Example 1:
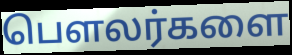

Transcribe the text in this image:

பௌலர்களை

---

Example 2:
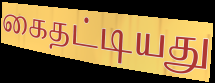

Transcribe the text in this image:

கைதட்டியது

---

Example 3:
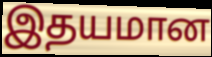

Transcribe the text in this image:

இதயமான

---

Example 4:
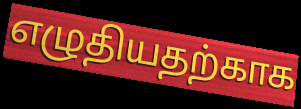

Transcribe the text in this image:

எழுதியதற்காக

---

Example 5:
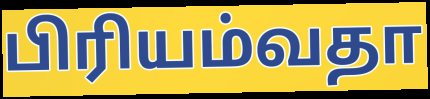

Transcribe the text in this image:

பிரியம்வதா